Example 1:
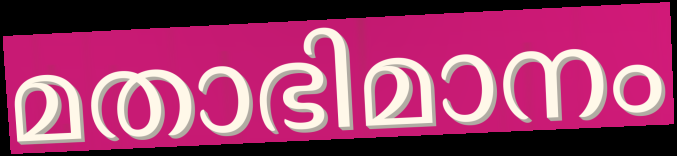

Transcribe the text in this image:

മതാഭിമാനം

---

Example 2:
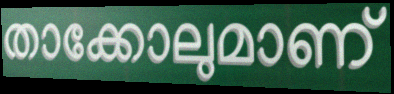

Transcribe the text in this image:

താക്കോലുമാണ്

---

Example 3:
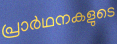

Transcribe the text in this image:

പ്രാർഥനകളുടെ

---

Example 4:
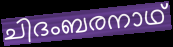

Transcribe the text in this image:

ചിദംബരനാഥ്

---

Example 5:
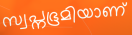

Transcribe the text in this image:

സ്വപ്നഭൂമിയാണ്